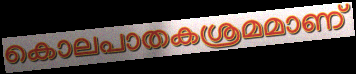
കൊലപാതകശ്രമമാണ്